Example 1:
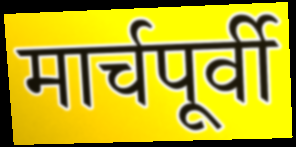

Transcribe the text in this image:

मार्चपूर्वी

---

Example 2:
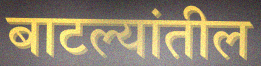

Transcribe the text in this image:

बाटल्यांतील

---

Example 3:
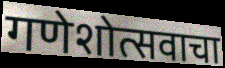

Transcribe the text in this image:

गणेशोत्सवाचा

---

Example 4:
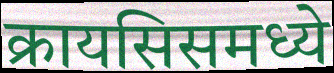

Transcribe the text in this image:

क्रायसिसमध्ये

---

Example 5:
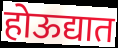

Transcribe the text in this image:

होऊद्यात